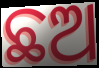
ଛଅ